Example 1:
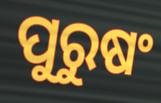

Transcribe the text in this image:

ପୁରୁଷଂ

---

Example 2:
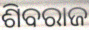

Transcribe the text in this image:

ଶିବରାଜ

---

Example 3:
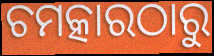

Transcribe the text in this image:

ଚମତ୍କାରଠାରୁ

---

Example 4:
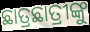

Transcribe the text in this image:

ଛାତ୍ରଛାତ୍ରୀଙ୍କୁ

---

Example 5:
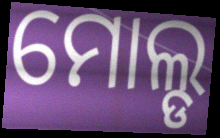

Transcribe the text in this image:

ମୋଲ୍ଡ